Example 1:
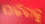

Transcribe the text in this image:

ପାଳିବାକୁ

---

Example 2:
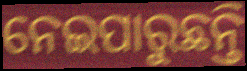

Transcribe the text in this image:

ନେଇପାରୁଛନ୍ତି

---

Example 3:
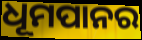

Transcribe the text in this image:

ଧୂମପାନର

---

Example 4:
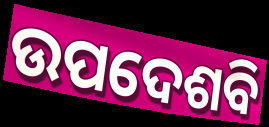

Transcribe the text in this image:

ଉପଦେଶବି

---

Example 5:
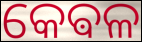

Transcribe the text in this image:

କେଵଳ